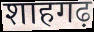
शाहगढ़